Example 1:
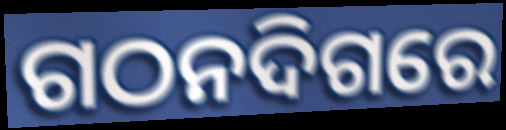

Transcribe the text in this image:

ଗଠନଦିଗରେ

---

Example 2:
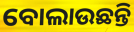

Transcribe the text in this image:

ବୋଲାଉଛନ୍ତି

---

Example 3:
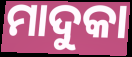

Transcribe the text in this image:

ମାଦୁକା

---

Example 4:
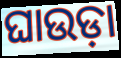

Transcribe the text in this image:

ଘାଉଡ଼ା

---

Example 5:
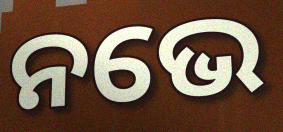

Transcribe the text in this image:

ନଭେ